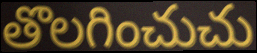
తొలగించుచు